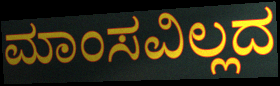
ಮಾಂಸವಿಲ್ಲದ